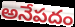
అనేపదం